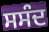
ਸਸੰਦ